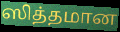
ஸித்தமான